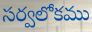
సర్వలోకము